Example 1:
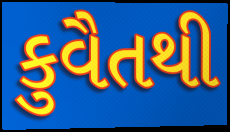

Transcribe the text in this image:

કુવૈતથી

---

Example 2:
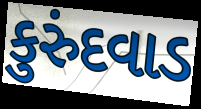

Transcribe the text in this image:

કુરુંદવાડ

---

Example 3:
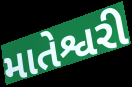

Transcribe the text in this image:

માતેશ્વરી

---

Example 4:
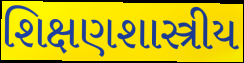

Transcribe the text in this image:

શિક્ષણશાસ્ત્રીય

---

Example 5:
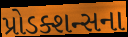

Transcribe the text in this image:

પ્રોડક્શન્સના